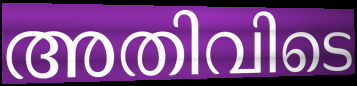
അതിവിടെ